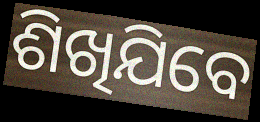
ଶିଖିଯିବେ